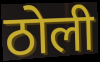
ठोली